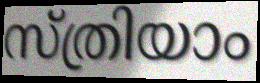
സ്ത്രിയാം